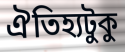
ঐতিহ্যটুকু